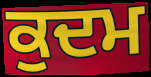
ਕੁਦਮ